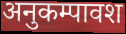
अनुकम्पावश